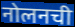
नोलनची